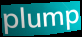
plump